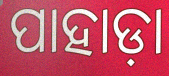
ପାହାଡ଼ା